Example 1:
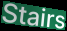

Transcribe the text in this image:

Stairs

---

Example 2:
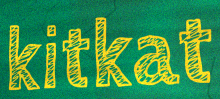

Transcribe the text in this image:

kitkat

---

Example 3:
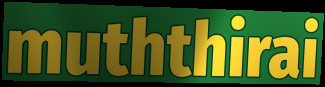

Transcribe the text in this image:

muththirai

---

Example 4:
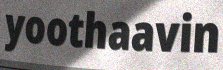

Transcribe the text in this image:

yoothaavin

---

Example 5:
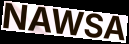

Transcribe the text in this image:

NAWSA